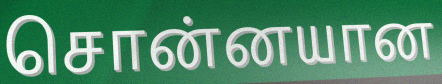
சொன்னயான